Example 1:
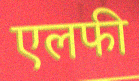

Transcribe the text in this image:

एलफी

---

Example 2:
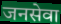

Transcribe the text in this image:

जनसेवा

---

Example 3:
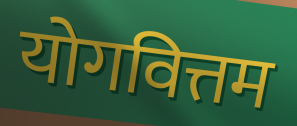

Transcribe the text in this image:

योगवित्तम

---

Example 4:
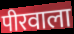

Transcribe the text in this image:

पीरवाला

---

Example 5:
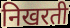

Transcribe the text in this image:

निखरती